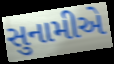
સુનામીએ